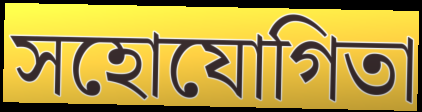
সহোযোগিতা